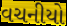
વચનીયો